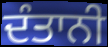
ਦੰਤਾਨੀ